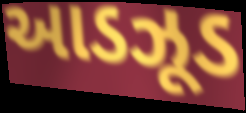
આડઝૂડ